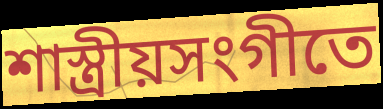
শাস্ত্রীয়সংগীতে